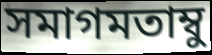
সমাগমতাম্বু